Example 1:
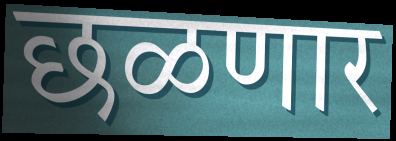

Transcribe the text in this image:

छळणार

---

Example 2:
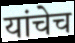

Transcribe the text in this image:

यांचेच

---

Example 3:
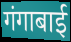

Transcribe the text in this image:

गंगाबाई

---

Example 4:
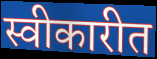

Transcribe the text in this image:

स्वीकारीत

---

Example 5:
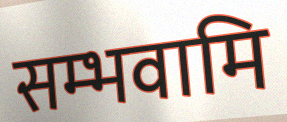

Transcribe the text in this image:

सम्भवामि